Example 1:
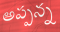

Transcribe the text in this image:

అప్పన్న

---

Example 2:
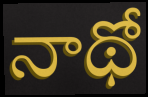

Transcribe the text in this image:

నాథో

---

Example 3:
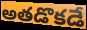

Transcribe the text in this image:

అతడొకడే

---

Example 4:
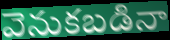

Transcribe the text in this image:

వెనుకబడినా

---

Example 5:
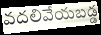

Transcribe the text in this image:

వదలివేయబడ్డ